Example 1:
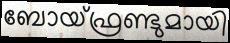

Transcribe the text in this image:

ബോയ്ഫ്രണ്ടുമായി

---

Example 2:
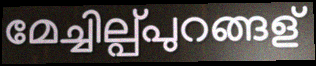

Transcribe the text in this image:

മേച്ചില്പ്പുറങ്ങള്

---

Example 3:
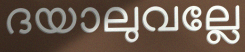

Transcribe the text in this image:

ദയാലുവല്ലേ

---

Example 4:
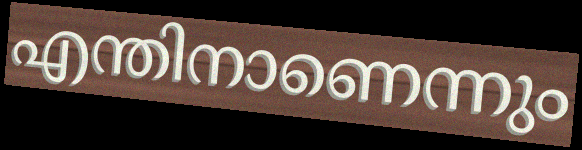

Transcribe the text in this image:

എന്തിനാണെന്നും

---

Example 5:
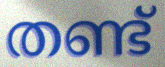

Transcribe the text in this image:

തണ്ട്